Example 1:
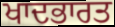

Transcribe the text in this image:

ਖਾਦਭਾਰਤ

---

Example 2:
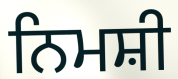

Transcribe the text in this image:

ਨਿਮਸ਼ੀ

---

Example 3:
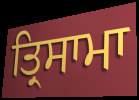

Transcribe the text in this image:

ਤ੍ਰਿਸਾਮਾ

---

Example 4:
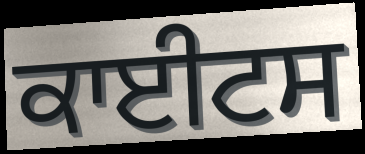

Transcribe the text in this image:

ਕਾਈਟਸ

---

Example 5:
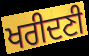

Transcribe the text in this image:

ਖਰੀਦਣੀ